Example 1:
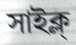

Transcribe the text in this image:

সাইক্ল্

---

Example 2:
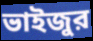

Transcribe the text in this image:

ভাইজুর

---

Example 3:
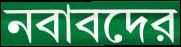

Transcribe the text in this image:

নবাবদের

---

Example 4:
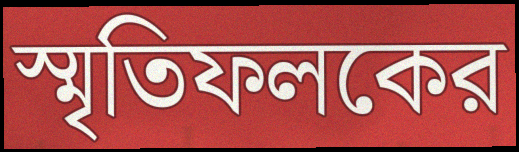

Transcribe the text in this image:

স্মৃতিফলকের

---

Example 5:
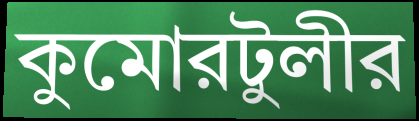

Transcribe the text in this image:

কুমোরটুলীর